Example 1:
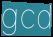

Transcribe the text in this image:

gcd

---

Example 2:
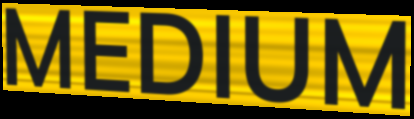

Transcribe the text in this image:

MEDIUM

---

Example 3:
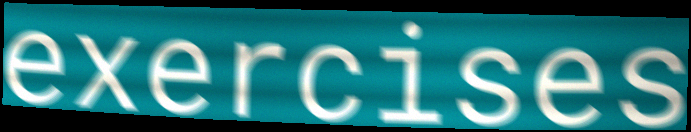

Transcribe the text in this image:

exercises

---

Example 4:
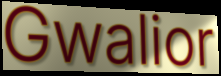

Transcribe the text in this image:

Gwalior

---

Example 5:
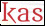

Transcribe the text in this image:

kas